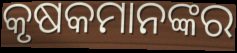
କୃଷକମାନଙ୍କର